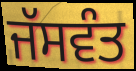
ਜੱਸਵੰਤ